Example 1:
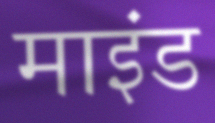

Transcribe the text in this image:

माइंड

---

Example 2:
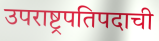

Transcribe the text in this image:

उपराष्ट्रपतिपदाची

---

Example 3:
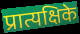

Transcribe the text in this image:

प्रात्यक्षिके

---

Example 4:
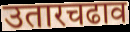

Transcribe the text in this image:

उतारचढाव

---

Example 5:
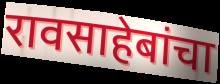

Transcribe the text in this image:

रावसाहेबांचा